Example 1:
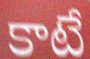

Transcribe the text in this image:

కాటే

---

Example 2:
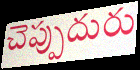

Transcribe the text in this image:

చెప్పుదురు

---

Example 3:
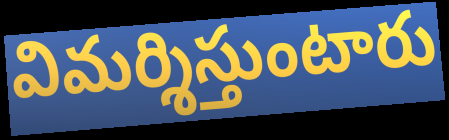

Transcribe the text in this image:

విమర్శిస్తుంటారు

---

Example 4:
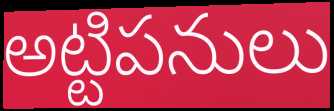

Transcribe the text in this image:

అట్టిపనులు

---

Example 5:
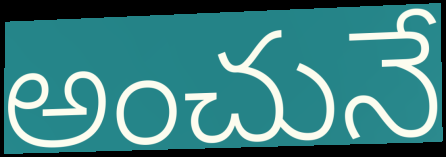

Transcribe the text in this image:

అంచునే